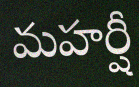
మహర్షీ